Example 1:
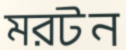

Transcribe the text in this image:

মরটন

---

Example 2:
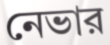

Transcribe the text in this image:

নেভার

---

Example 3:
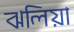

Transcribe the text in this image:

ঝলিয়া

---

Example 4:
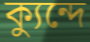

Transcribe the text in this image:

ক্যুন্দে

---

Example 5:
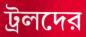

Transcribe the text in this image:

ট্রলদের